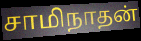
சாமிநாதன்